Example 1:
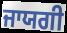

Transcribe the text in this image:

ਜਾਯਗੀ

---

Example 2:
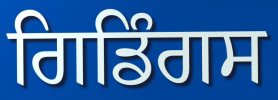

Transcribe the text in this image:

ਗਿਡਿੰਗਸ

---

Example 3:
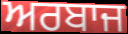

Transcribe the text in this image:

ਅਰਬਾਜ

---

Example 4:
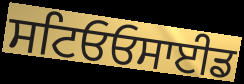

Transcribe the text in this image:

ਸਟਿਓਓਸਾਈਡ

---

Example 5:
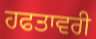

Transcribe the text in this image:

ਹਫਤਾਵਰੀ